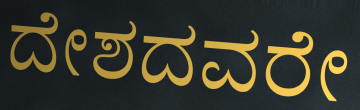
ದೇಶದವರೇ